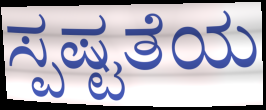
ಸ್ಪಷ್ಟತೆಯ